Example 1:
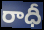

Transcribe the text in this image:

రాధీ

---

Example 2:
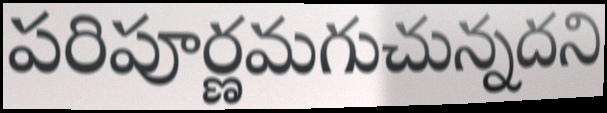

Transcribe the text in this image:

పరిపూర్ణమగుచున్నదని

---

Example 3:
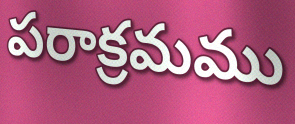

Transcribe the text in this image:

పరాక్రమము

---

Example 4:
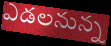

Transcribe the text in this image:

ఎడలనున్న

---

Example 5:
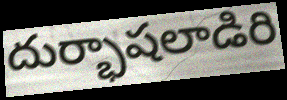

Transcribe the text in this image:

దుర్భాషలాడిరి